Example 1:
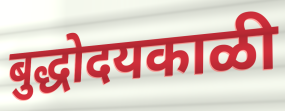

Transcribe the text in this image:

बुद्धोदयकाळी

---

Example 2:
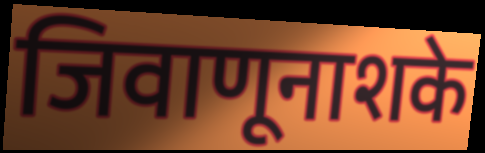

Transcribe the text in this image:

जिवाणूनाशके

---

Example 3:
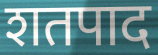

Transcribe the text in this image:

शतपाद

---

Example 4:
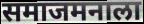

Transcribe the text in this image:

समाजमनाला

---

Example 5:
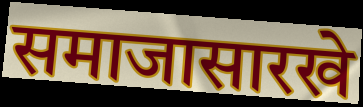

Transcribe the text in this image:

समाजासारखे